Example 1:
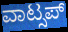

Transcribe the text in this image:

ವಾಟ್ಸಪ್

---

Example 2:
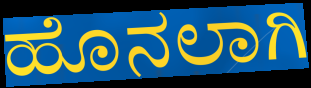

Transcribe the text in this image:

ಹೊನಲಾಗಿ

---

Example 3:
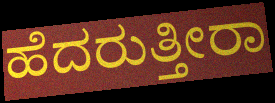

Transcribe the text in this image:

ಹೆದರುತ್ತೀರಾ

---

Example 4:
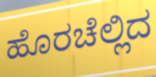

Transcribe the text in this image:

ಹೊರಚೆಲ್ಲಿದ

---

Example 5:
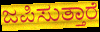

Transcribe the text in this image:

ಜಪಿಸುತ್ತಾರೆ